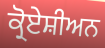
ਕ੍ਰੋਏਸ਼ੀਅਨ